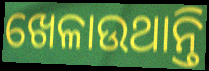
ଖେଳାଉଥାନ୍ତି